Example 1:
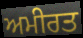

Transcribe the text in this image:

ਅਮੀਰਤ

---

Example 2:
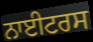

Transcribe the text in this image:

ਨਾਈਟਰਸ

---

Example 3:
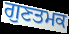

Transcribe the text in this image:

ਗੁਣਤਮਕ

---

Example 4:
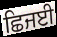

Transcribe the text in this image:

ਛਿਜਈ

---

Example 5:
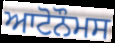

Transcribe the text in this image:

ਆਟੋਨੌਮਸ